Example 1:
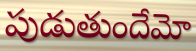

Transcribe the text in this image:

పుడుతుందేమో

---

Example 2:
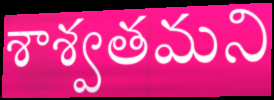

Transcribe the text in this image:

శాశ్వతమని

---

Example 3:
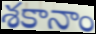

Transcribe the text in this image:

శకానాం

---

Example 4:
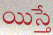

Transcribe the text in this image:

యిస్తే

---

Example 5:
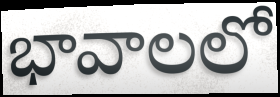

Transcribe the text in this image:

భావాలలో